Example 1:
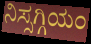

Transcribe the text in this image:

ನಿಸ್ಸಗ್ಗಿಯಂ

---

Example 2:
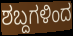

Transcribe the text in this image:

ಶಬ್ದಗಳಿಂದ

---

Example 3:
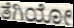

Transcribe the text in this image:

ತೆಗಿಯೋ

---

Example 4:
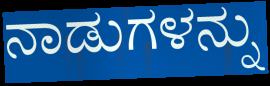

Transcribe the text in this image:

ನಾಡುಗಳನ್ನು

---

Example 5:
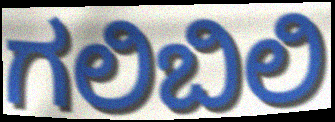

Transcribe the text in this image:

ಗಲಿಬಿಲಿ